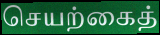
செயற்கைத்